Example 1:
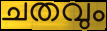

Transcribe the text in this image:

ചതവും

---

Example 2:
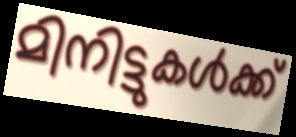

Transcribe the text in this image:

മിനിട്ടുകൾക്ക്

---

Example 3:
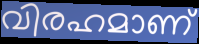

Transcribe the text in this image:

വിരഹമാണ്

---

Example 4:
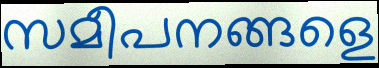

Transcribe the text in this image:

സമീപനങ്ങളെ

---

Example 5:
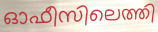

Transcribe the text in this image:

ഓഫീസിലെത്തി